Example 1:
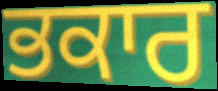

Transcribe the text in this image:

ਭਕਾਰ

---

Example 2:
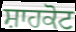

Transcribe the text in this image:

ਸ਼ਾਹਕੋਟ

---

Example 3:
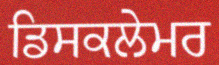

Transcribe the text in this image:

ਡਿਸਕਲੇਮਰ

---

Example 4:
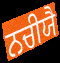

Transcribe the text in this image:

ਨਚੀਯੈ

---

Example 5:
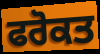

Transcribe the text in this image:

ਫਰੋਕਤ